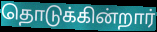
தொடுக்கின்றார்